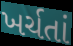
ખર્ચતાં